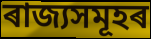
ৰাজ্যসমূহৰ